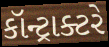
કૉન્ટ્રાક્ટરે